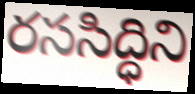
రససిద్ధిని